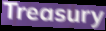
Treasury